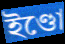
ইণ্ডো